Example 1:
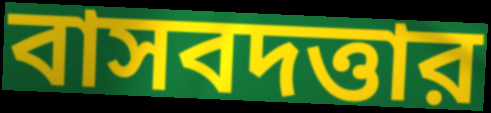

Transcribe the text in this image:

বাসবদত্তার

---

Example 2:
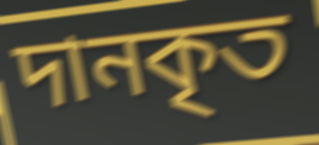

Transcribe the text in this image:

দানকৃত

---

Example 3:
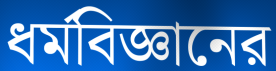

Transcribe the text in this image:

ধর্মবিজ্ঞানের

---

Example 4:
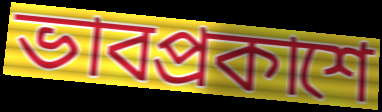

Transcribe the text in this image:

ভাবপ্রকাশে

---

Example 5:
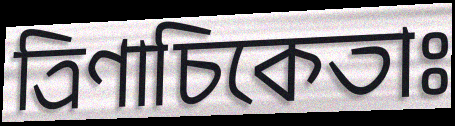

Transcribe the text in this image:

ত্রিণাচিকেতাঃ